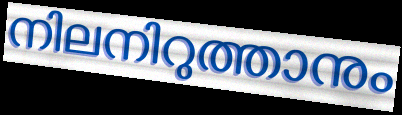
നിലനിറുത്താനും